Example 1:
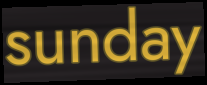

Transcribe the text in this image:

sunday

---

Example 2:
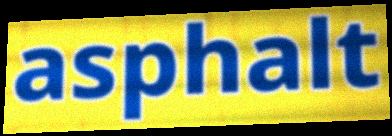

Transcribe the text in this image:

asphalt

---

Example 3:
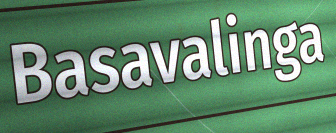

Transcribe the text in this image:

Basavalinga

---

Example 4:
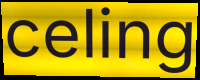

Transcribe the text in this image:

celing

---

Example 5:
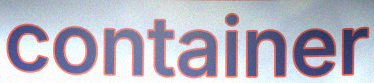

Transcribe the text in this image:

container